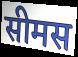
सीमस